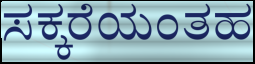
ಸಕ್ಕರೆಯಂತಹ